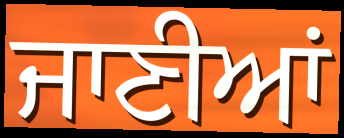
ਜਾਣੀਆਂ